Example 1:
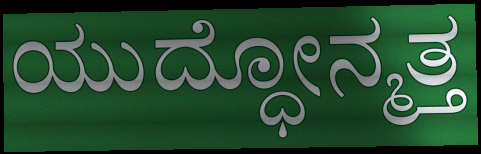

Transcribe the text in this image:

ಯುದ್ಧೋನ್ಮತ್ತ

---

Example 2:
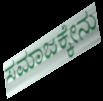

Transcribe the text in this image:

ಸಮಾಜಕ್ಕೇನು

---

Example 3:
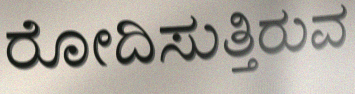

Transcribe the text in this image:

ರೋದಿಸುತ್ತಿರುವ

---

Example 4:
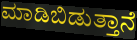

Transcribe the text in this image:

ಮಾಡಿಬಿಡುತ್ತಾನೆ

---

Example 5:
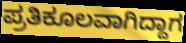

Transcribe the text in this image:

ಪ್ರತಿಕೂಲವಾಗಿದ್ದಾಗ